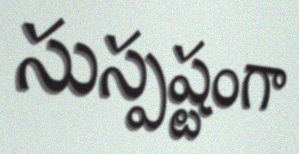
సుస్పష్టంగా